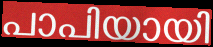
പാപിയായി